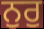
ਨੁਰੁ